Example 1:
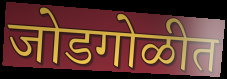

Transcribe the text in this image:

जोडगोळीत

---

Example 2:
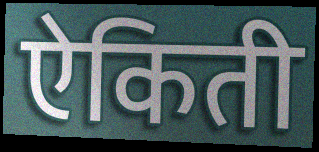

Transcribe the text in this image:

ऐकिती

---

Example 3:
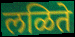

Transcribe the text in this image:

लळिते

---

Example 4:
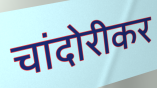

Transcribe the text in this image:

चांदोरीकर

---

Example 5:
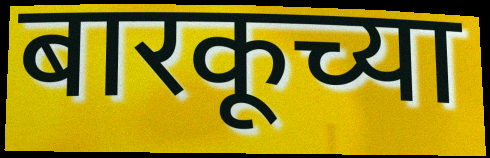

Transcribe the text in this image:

बारकूच्या